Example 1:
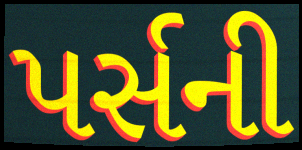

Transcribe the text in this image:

પર્સની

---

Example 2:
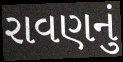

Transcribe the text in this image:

રાવણનું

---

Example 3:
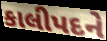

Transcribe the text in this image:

કાલીપદને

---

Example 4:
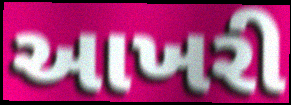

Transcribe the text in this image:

આખરી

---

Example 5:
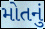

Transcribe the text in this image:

મોતનું